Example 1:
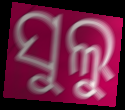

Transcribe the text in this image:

ସୁଲୁ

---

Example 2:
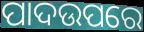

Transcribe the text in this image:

ପାଦଉପରେ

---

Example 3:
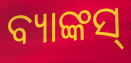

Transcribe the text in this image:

ବ୍ୟାଙ୍କସ୍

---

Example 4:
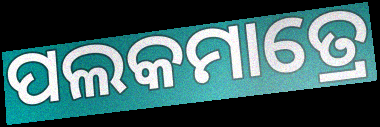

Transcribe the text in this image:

ପଲକମାତ୍ରେ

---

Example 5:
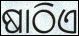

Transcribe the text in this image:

ଷାଠିଏ